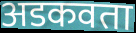
अडकवता